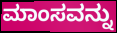
ಮಾಂಸವನ್ನು